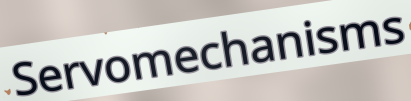
Servomechanisms